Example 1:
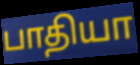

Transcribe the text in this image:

பாதியா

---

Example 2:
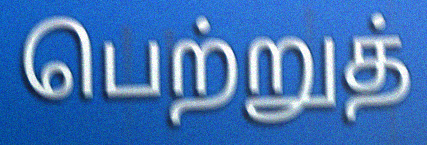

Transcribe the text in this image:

பெற்றுத்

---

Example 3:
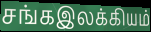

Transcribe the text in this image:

சங்கஇலக்கியம்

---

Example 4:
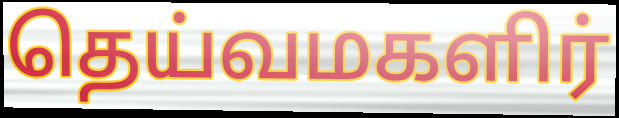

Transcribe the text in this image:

தெய்வமகளிர்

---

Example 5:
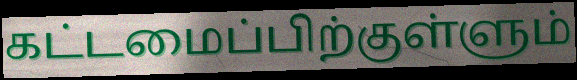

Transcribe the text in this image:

கட்டமைப்பிற்குள்ளும்